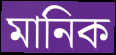
মানিক